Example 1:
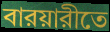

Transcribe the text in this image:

বারয়ারীতে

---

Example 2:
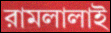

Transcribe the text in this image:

রামলালাই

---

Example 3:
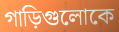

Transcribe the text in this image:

গাড়িগুলোকে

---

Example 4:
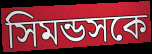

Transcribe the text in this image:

সিমন্ডসকে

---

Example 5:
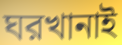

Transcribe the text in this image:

ঘরখানাই